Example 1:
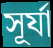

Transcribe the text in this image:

সূর্যা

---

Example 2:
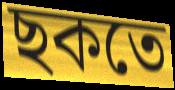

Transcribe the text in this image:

ছকতে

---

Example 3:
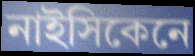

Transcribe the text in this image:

নাইসিকেনে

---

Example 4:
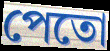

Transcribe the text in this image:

পেতো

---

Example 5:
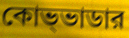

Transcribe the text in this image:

কোভ্ভাডার